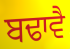
ਬਢਾਵੈ